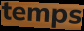
temps